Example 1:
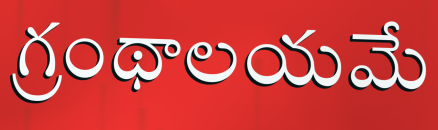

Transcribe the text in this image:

గ్రంథాలయమే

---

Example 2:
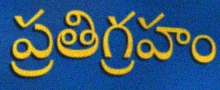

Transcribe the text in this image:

ప్రతిగ్రహం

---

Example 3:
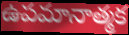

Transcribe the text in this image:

ఉపమానాత్మక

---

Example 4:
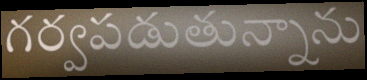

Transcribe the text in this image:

గర్వపడుతున్నాను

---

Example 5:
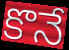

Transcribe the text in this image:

కొనే